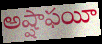
అష్షాఫయీ